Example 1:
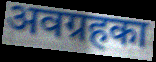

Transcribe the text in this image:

अवग्रहका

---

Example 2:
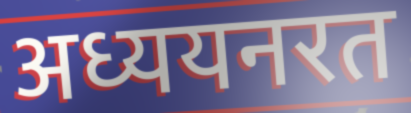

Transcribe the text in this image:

अध्ययनरत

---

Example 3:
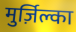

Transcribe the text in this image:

मुर्ज़िल्का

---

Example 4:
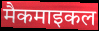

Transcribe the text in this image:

मैकमाइकल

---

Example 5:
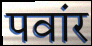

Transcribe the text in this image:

पवांर